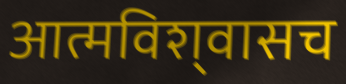
आत्मविश्वासच